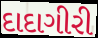
દાદાગીરી